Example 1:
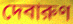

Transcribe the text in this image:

দেবারুণ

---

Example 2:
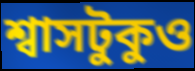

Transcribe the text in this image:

শ্বাসটুকুও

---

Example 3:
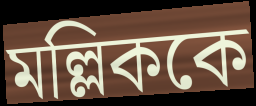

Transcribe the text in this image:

মল্লিককে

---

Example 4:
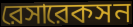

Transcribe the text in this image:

রেসারেকসন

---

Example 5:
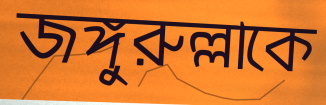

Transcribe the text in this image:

জঙ্গুরুল্লাকে